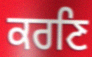
ਕਰਣਿ